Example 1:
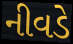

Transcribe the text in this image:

નીવડે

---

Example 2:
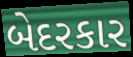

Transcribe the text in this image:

બેદરકાર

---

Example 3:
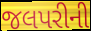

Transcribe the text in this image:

જલપરીની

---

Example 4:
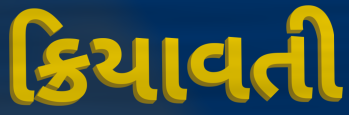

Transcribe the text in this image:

ક્રિયાવતી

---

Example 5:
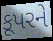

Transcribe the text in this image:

કૂપરને